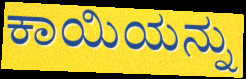
ಕಾಯಿಯನ್ನು